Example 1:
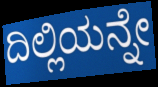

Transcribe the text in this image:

ದಿಲ್ಲಿಯನ್ನೇ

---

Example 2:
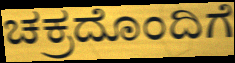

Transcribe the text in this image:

ಚಕ್ರದೊಂದಿಗೆ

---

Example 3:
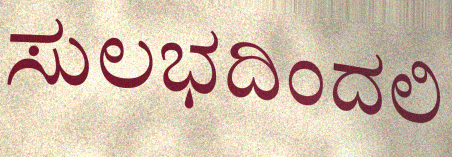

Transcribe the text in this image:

ಸುಲಭದಿಂದಲಿ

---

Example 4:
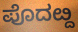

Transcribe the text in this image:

ಪೊದೞ್ದ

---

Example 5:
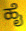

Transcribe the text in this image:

ಹೈ